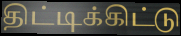
திட்டிக்கிட்டு